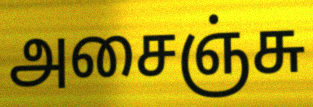
அசைஞ்சு